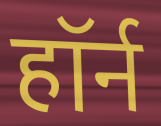
हॉर्न